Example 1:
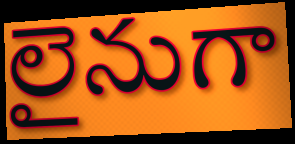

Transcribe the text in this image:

లైనుగా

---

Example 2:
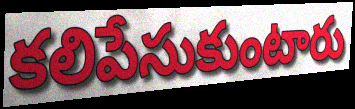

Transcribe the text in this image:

కలిపేసుకుంటారు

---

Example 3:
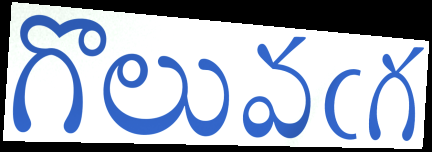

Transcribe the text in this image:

గొలువఁగ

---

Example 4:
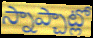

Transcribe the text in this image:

స్నాప్చాట్లో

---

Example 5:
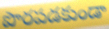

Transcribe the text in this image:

పొరపడకుండా